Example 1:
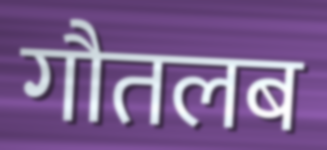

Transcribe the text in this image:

गौतलब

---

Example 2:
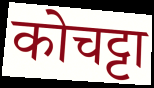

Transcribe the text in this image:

कोचट्टा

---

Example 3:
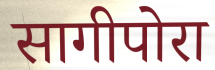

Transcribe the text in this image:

सागीपोरा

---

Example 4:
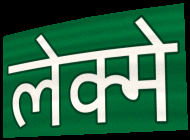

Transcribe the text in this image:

लेक्मे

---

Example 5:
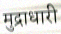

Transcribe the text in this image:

मुद्राधारी